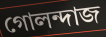
গোলন্দাজ